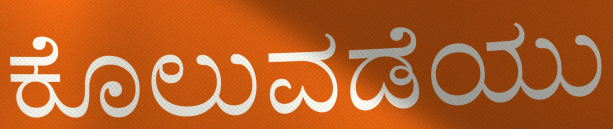
ಕೊಲುವಡೆಯು